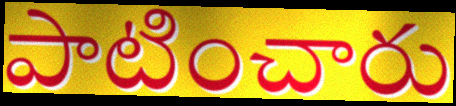
పాటించారు